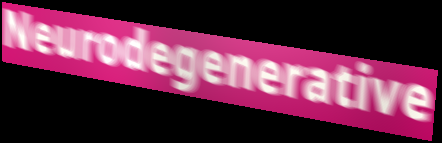
Neurodegenerative